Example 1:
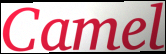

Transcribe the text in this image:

Camel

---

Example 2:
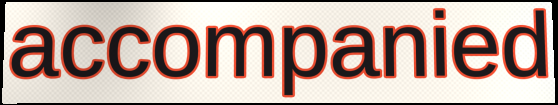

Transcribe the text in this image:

accompanied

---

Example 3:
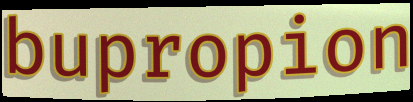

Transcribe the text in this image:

bupropion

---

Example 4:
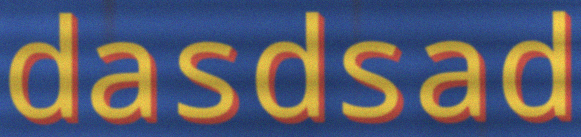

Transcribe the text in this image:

dasdsad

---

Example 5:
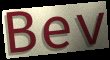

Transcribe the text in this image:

Bev